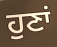
ਹੁਣਾਂ